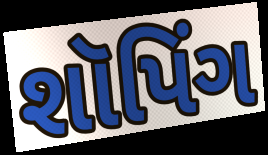
શૉપિંગ